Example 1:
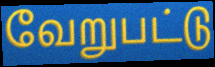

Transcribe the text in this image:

வேறுபட்டு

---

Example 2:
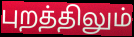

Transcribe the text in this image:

புறத்திலும்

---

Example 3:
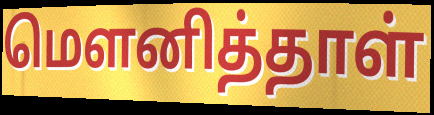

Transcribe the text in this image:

மௌனித்தாள்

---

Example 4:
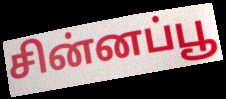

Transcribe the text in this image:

சின்னப்பூ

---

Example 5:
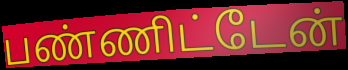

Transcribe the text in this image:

பண்ணிட்டேன்